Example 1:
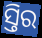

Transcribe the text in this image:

ସ୍ତିର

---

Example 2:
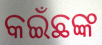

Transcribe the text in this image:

କଇଁଛଙ୍କ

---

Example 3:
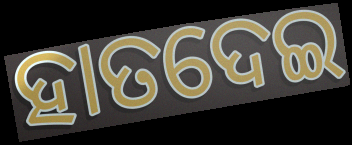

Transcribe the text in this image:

ହାତଦେଇ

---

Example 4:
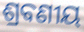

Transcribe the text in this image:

ଶ୍ରବଣୀୟ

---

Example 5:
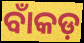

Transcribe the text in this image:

ବାଁକଡ଼